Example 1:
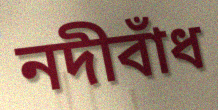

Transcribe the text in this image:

নদীবাঁধ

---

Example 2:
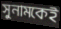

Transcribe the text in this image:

সুনামকেই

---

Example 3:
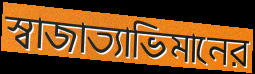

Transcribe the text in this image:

স্বাজাত্যাভিমানের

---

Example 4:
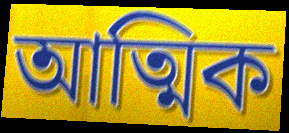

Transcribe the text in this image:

আত্মিক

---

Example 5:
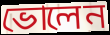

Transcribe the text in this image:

ভোলেন